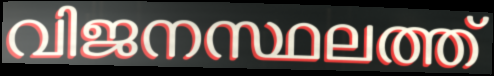
വിജനസ്ഥലത്ത്